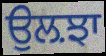
ਉਲ਼ਝਾ